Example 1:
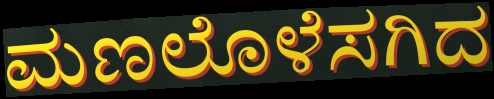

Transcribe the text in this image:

ಮಣಲೊಳೆಸಗಿದ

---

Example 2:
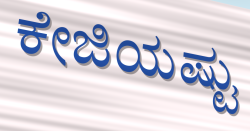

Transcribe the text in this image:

ಕೇಜಿಯಷ್ಟು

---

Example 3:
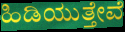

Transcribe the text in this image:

ಹಿಡಿಯುತ್ತೇವೆ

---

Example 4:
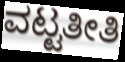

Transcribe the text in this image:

ವಟ್ಟತೀತಿ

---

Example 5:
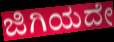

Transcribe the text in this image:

ಜಿಗಿಯದೇ